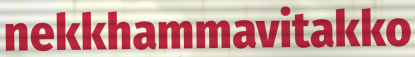
nekkhammavitakko